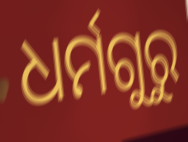
ଧର୍ମଗୁରୁ